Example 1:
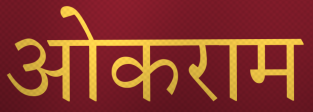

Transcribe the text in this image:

ओकराम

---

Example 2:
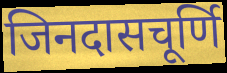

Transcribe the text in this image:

जिनदासचूर्णि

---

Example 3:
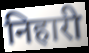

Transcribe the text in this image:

निहारी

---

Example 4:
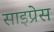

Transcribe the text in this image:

साइप्रेस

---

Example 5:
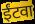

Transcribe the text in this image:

ईंटवा